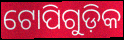
ଟୋପିଗୁଡ଼ିକ